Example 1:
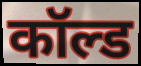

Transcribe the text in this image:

कॉल्ड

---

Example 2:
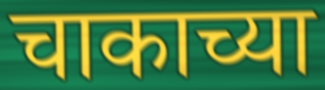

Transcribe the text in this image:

चाकाच्या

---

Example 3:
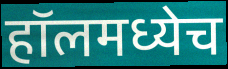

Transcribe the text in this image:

हॉलमध्येच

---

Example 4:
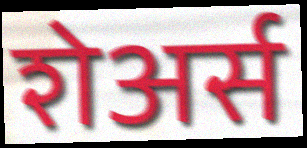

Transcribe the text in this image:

शेअर्स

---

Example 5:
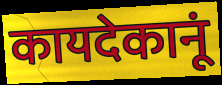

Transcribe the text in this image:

कायदेकानूं